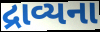
દ્રાવ્યના